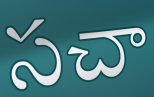
సచా